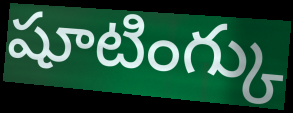
షూటింగ్కు